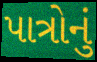
પાત્રોનું